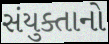
સંયુક્તાનો